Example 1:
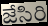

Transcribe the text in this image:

జేసిరి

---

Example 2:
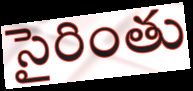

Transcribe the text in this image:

సైరింతు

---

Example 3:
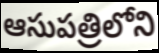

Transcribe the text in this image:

ఆసుపత్రిలోని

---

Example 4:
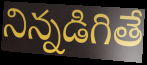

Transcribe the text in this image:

నిన్నడిగితే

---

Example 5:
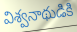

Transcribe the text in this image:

విశ్వనాథుడికి